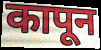
कापून